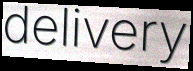
delivery